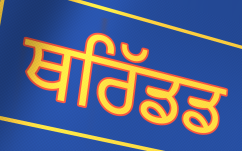
ਥਰਿੱਡਡ